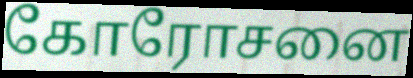
கோரோசனை